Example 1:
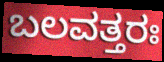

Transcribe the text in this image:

ಬಲವತ್ತರಃ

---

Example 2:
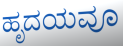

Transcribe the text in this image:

ಹೃದಯವೂ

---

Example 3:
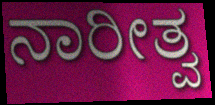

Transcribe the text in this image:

ನಾರೀತ್ವ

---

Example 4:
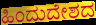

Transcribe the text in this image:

ಹಿಂದುದೇಶದ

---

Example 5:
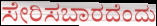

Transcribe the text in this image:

ಸೇರಿಸಬಾರದೆಂದು